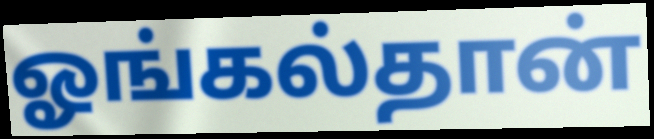
ஓங்கல்தான்